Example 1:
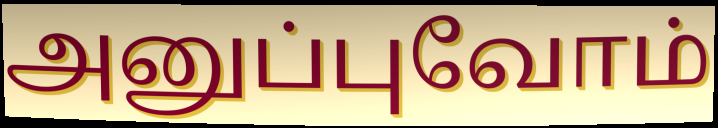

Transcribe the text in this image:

அனுப்புவோம்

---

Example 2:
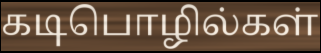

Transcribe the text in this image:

கடிபொழில்கள்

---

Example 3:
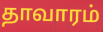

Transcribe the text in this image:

தாவாரம்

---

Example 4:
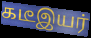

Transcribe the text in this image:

கடீஇயர்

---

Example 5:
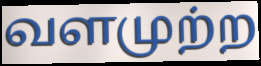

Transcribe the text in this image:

வளமுற்ற